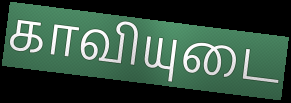
காவியுடை